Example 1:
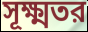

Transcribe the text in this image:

সূক্ষ্মতর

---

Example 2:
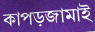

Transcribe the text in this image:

কাপড়জামাই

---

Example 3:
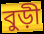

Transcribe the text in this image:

বুড়ী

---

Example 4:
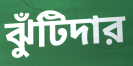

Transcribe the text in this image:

ঝুঁটিদার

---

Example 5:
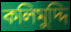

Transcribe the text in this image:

কলিমুদ্দি